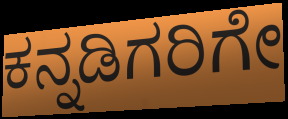
ಕನ್ನಡಿಗರಿಗೇ